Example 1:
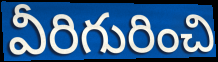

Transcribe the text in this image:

వీరిగురించి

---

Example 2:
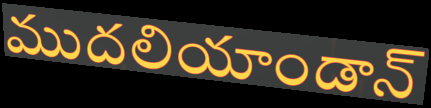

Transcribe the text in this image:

ముదలియాండాన్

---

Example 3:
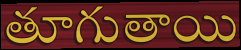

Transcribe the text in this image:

తూగుతాయి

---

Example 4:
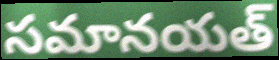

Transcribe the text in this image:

సమానయత్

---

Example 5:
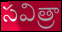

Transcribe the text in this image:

సవిత్రా